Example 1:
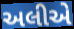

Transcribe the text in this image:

અલીએ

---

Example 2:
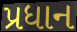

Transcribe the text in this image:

પ્રધાન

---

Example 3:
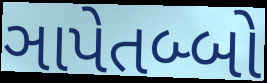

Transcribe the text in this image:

ઞાપેતબ્બો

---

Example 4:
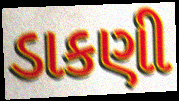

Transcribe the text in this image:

ડાકણી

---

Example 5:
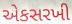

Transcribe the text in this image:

એકસરખી